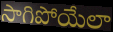
సాగిపోయేలా